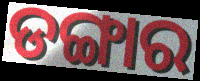
ଡଙ୍ଗାର